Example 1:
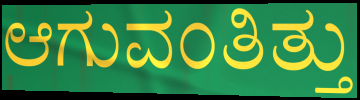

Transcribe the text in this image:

ಆಗುವಂತಿತ್ತು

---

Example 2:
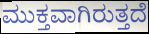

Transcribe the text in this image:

ಮುಕ್ತವಾಗಿರುತ್ತದೆ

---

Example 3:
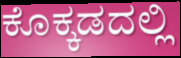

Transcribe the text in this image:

ಕೊಕ್ಕಡದಲ್ಲಿ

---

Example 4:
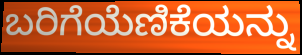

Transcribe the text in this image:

ಬರಿಗೆಯೆಣಿಕೆಯನ್ನು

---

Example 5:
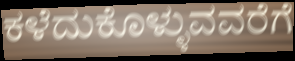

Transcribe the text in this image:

ಕಳೆದುಕೊಳ್ಳುವವರೆಗೆ